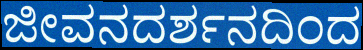
ಜೀವನದರ್ಶನದಿಂದ